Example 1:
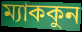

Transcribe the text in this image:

ম্যাককুন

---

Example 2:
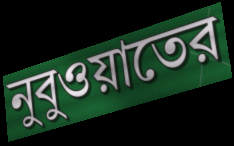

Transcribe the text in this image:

নুবুওয়াতের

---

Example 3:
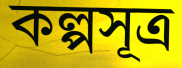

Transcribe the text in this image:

কল্পসূত্র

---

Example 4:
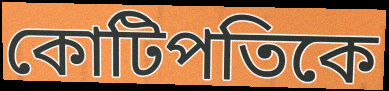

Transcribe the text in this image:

কোটিপতিকে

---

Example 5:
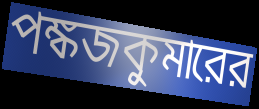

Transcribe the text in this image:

পঙ্কজকুমারের